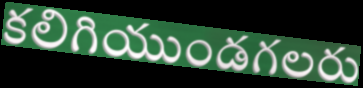
కలిగియుండగలరు